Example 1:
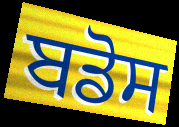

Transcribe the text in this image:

ਬਡੋਸ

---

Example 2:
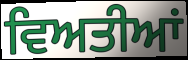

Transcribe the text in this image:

ਵਿਅਤੀਆਂ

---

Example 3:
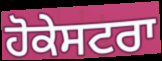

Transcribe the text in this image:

ਹੋਕੇਸਟਰਾ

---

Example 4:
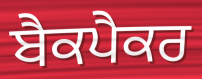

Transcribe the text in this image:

ਬੈਕਪੈਕਰ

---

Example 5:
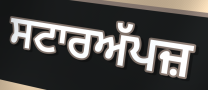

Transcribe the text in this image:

ਸਟਾਰਅੱਪਜ਼